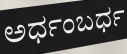
ಅರ್ಧಂಬರ್ಧ